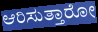
ಆರಿಸುತ್ತಾರೋ